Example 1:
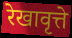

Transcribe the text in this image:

रेखावृत्ते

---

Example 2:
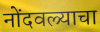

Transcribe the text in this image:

नोंदवल्याचा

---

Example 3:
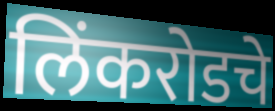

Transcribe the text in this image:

लिंकरोडचे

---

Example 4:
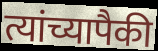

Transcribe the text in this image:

त्यांच्यापैकी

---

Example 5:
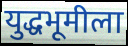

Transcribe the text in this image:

युद्धभूमीला